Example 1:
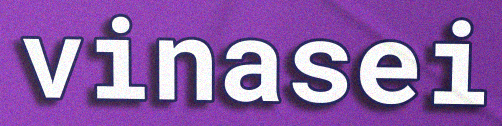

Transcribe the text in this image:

vinasei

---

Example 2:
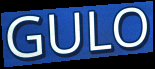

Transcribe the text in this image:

GULO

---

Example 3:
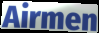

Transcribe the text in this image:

Airmen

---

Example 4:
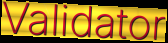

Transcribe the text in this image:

Validator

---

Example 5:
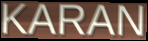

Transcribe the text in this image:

KARAN